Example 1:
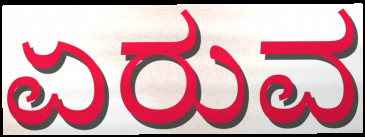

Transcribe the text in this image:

ಏರುವ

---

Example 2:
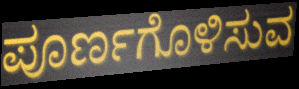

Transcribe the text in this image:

ಪೂರ್ಣಗೊಳಿಸುವ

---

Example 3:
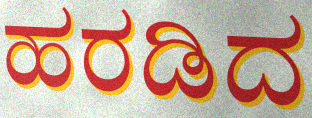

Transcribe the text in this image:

ಹರಡಿದ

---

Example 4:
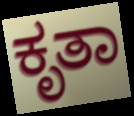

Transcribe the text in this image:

ಕೃತಾ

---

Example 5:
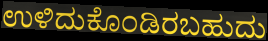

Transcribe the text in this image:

ಉಳಿದುಕೊಂಡಿರಬಹುದು